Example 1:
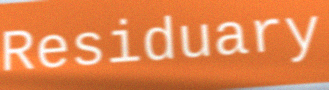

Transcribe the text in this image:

Residuary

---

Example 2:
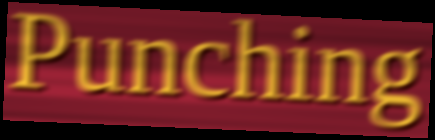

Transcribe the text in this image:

Punching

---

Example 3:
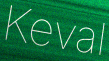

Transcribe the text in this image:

Keval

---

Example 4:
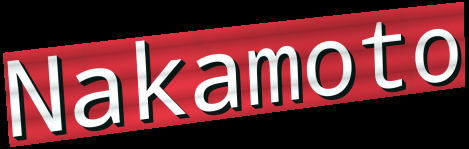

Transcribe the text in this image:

Nakamoto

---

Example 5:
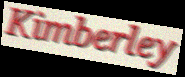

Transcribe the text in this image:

Kimberley